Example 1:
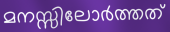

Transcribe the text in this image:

മനസ്സിലോർത്തത്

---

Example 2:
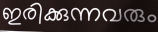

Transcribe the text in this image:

ഇരിക്കുന്നവരും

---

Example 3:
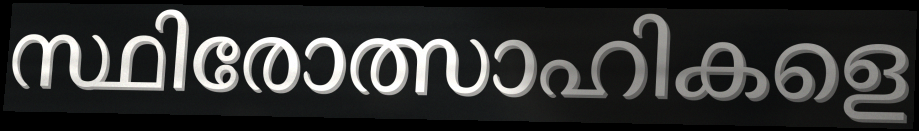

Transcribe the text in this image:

സ്ഥിരോത്സാഹികളെ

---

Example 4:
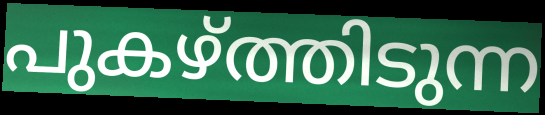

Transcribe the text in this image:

പുകഴ്ത്തിടുന്ന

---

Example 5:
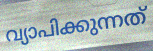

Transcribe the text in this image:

വ്യാപിക്കുന്നത്